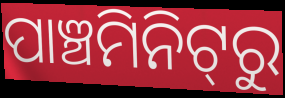
ପାଞ୍ଚମିନିଟ୍‌ରୁ